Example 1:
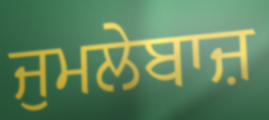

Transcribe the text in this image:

ਜੁਮਲੇਬਾਜ਼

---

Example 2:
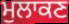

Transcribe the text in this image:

ਮੁਲਾਕਣ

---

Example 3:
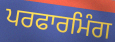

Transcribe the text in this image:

ਪਰਫਾਰਮਿੰਗ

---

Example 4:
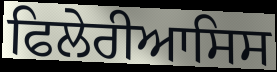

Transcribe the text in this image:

ਫਿਲੇਰੀਆਸਿਸ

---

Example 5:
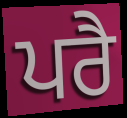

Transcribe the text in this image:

ਪਰੈ